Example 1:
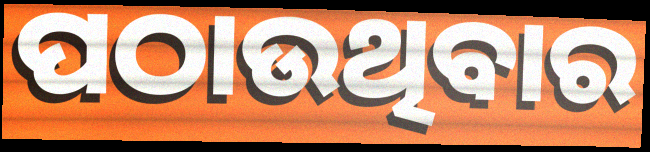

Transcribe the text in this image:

ପଠାଉଥିବାର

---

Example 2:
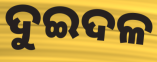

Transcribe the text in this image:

ଦୁଇଦଳ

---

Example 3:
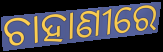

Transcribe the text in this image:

ଚାହାଣୀରେ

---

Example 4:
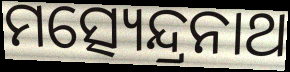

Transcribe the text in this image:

ମତ୍ସ୍ୟେନ୍ଦ୍ରନାଥ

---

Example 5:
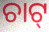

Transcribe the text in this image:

ଚାଟ୍